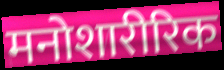
मनोशारीरिक